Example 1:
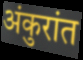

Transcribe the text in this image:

अंकुरांत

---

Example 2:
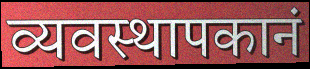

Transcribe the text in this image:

व्यवस्थापकानं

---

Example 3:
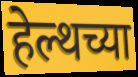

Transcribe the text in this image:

हेल्थच्या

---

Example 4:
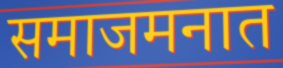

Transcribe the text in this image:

समाजमनात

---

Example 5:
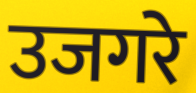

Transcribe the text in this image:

उजगरे